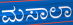
ಮಸಾಲಾ